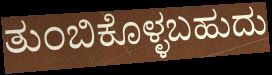
ತುಂಬಿಕೊಳ್ಳಬಹುದು